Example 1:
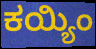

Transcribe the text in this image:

ಕಯ್ಯಿಂ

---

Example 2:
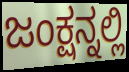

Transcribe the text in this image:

ಜಂಕ್ಷನ್ನಲ್ಲಿ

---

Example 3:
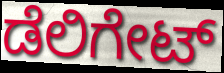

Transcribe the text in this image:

ಡೆಲಿಗೇಟ್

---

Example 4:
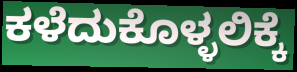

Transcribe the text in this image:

ಕಳೆದುಕೊಳ್ಳಲಿಕ್ಕೆ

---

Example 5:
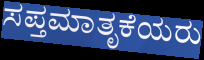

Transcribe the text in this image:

ಸಪ್ತಮಾತೃಕೆಯರು